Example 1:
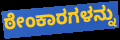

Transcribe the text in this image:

ಠೇಂಕಾರಗಳನ್ನು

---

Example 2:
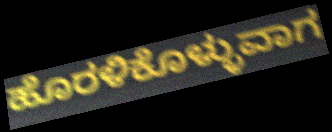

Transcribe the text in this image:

ಹೊರಳಿಕೊಳ್ಳುವಾಗ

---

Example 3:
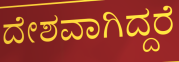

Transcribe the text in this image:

ದೇಶವಾಗಿದ್ದರೆ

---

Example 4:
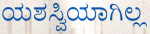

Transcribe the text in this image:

ಯಶಸ್ವಿಯಾಗಿಲ್ಲ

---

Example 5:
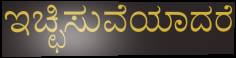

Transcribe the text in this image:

ಇಚ್ಛಿಸುವೆಯಾದರೆ